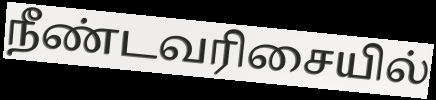
நீண்டவரிசையில்